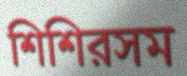
শিশিরসম